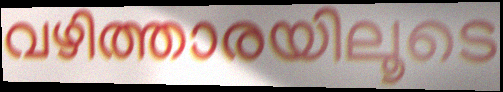
വഴിത്താരയിലൂടെ